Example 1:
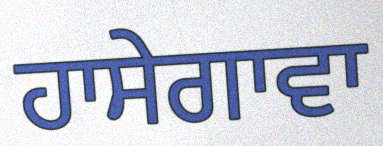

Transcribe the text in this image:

ਹਾਸੇਗਾਵਾ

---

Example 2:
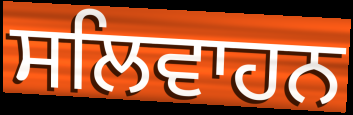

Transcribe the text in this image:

ਸਲਿਵਾਹਨ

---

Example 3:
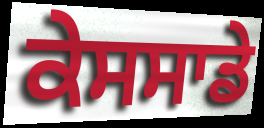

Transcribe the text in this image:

ਕੇਸਸਾਡੇ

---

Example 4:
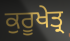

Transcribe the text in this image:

ਕੁਰੂਖੇਤ੍ਰ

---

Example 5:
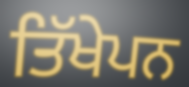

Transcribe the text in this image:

ਤਿੱਖੇਪਨ